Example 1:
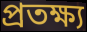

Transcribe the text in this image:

প্ৰতক্ষ্য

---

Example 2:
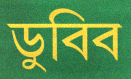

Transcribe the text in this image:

ডুবিব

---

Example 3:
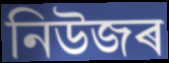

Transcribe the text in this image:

নিউজৰ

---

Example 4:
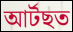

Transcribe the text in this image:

আৰ্টছত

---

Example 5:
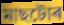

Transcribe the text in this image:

মাছটোৰ